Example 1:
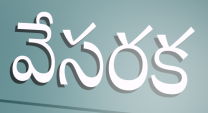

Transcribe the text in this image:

వేసరక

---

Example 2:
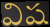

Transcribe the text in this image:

విష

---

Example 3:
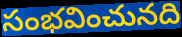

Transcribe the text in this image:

సంభవించునది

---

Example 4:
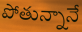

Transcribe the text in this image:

పోతున్నానే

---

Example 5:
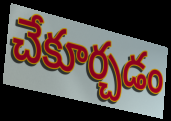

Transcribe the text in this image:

చేకూర్చడం